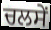
ਚਲਸੇਂ